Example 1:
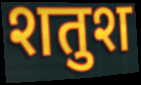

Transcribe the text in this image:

शतुश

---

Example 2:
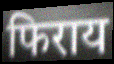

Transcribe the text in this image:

फिराय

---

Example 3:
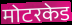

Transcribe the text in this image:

मोटरकेड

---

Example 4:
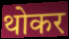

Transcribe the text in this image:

थोकर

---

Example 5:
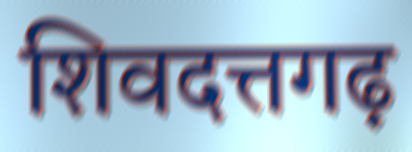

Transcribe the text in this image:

शिवदत्तगढ़